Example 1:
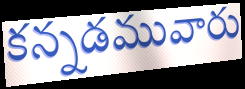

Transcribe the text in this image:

కన్నడమువారు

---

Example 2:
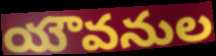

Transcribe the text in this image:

యౌవనుల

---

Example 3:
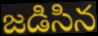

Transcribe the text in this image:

జడిసిన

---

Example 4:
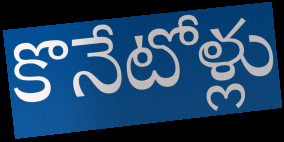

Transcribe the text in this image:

కొనేటోళ్లు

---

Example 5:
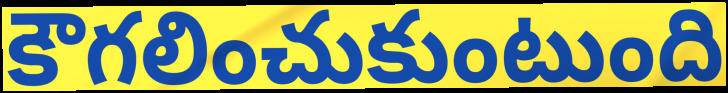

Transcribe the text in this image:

కౌగలించుకుంటుంది